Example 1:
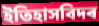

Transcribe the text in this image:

ইতিহাসবিদৰ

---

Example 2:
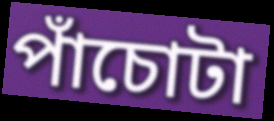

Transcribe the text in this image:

পাঁচোটা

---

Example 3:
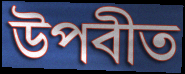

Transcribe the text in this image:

উপবীত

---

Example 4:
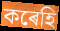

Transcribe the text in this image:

কৰেহি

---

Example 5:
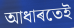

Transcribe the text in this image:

আধাৰতেই